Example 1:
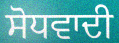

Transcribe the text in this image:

ਸੋਧਵਾਦੀ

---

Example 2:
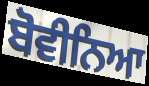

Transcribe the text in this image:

ਬੋਵੀਨਿਆ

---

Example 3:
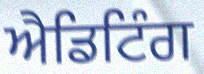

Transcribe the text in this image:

ਐਡਿਟਿੰਗ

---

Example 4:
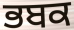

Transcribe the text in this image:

ਭਬਕ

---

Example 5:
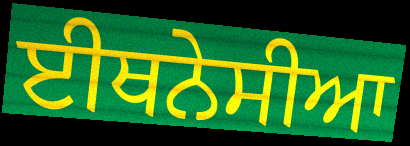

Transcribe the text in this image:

ਈਥਨੇਸੀਆ